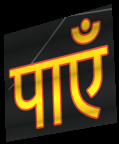
पाएँ